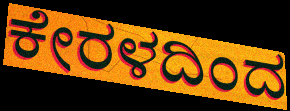
ಕೇರಳದಿಂದ